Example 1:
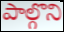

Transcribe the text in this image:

పాల్గొని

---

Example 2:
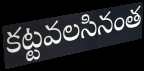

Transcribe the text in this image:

కట్టవలసినంత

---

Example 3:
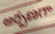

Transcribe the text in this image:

అర్పణగా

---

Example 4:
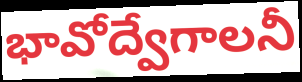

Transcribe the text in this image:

భావోద్వేగాలనీ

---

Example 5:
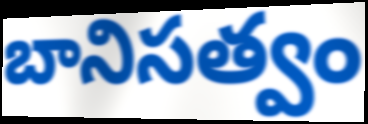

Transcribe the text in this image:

బానిసత్వం